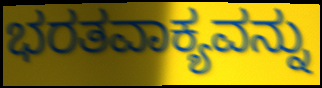
ಭರತವಾಕ್ಯವನ್ನು